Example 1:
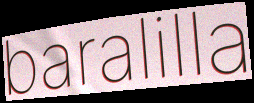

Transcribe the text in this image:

baralilla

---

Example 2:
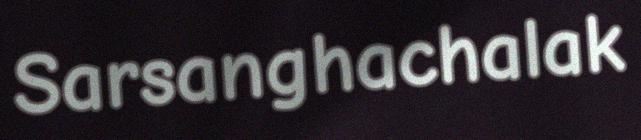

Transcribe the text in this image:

Sarsanghachalak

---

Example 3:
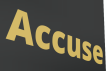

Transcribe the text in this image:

Accuse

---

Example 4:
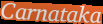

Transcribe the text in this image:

Carnataka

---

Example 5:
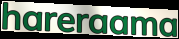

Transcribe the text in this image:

hareraama